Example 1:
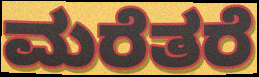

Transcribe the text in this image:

ಮರೆತರೆ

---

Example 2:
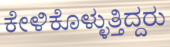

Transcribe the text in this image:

ಕೇಳಿಕೊಳ್ಳುತ್ತಿದ್ದರು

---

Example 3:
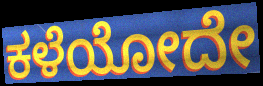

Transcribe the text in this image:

ಕಳೆಯೋದೇ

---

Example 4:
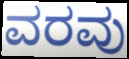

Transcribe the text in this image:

ವರವು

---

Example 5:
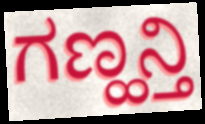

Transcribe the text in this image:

ಗಣ್ಹನ್ತಿ